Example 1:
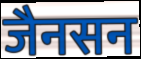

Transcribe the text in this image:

जैनसन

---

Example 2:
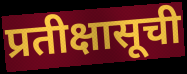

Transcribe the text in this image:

प्रतीक्षासूची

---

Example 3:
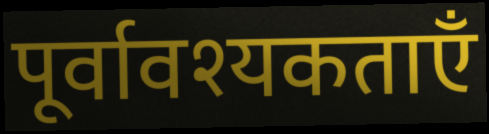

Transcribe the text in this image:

पूर्वावश्यकताएँ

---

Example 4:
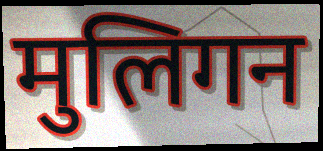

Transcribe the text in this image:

मुलिगन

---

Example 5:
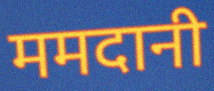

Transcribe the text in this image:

ममदानी